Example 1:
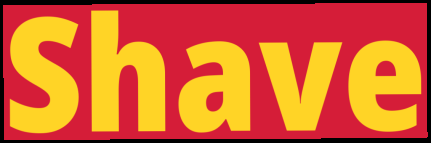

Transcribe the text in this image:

Shave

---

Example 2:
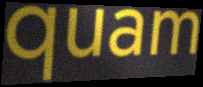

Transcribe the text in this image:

quam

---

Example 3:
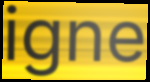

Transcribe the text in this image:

igne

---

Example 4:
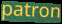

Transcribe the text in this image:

patron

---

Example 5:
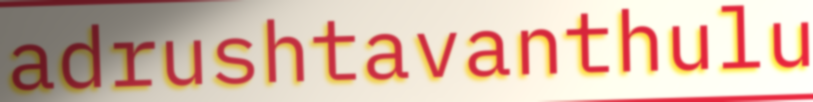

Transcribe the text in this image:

adrushtavanthulu